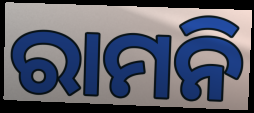
ରାମନି